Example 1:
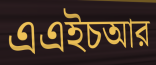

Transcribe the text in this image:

এএইচআর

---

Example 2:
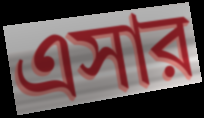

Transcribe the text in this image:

এসার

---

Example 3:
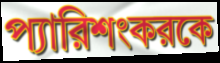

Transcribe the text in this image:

প্যারিশংকরকে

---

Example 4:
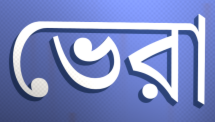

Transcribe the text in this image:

ভেরা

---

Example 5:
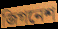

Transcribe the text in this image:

জিগনেশ